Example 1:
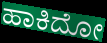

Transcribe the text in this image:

ಹಾಕಿದೋ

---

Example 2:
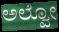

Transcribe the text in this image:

ಅಲ್ವೋ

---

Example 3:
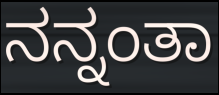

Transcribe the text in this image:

ನನ್ನಂತಾ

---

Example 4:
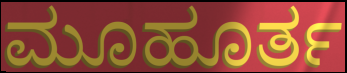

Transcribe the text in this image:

ಮೂಹೂರ್ತ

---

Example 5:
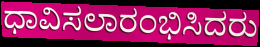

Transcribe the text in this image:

ಧಾವಿಸಲಾರಂಭಿಸಿದರು